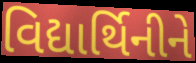
વિદ્યાર્થિનીને